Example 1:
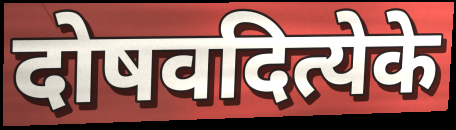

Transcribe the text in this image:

दोषवदित्येके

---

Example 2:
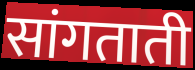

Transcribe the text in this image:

सांगताती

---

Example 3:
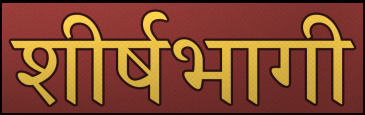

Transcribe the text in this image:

शीर्षभागी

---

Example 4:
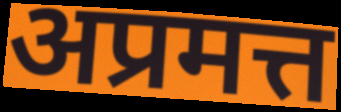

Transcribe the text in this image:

अप्रमत्त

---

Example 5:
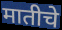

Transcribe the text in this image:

मातीचे